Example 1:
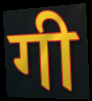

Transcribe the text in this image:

गी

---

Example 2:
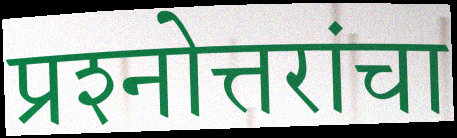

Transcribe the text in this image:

प्रश्नोत्तरांचा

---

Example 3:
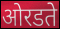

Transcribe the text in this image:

ओरडते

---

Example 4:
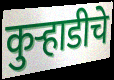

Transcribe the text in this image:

कुऱ्हाडीचे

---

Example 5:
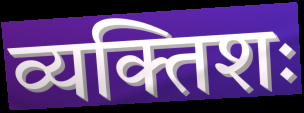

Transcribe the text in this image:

व्यक्तिशः